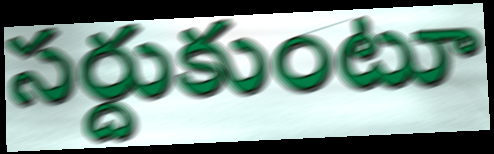
సర్దుకుంటూ